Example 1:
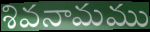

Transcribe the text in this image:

శివనామము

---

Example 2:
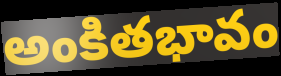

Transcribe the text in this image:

అంకితభావం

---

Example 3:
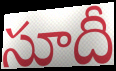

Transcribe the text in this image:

సూదీ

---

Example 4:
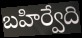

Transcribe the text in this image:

బహిర్వేది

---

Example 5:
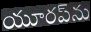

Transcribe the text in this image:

యూరప్‌ను